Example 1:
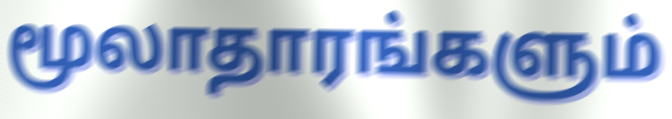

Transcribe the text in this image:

மூலாதாரங்களும்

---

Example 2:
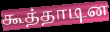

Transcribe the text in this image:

கூத்தாடின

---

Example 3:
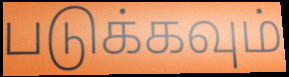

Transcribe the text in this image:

படுக்கவும்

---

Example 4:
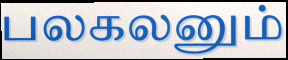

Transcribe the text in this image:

பலகலனும்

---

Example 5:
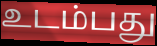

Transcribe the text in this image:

உடம்பது